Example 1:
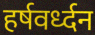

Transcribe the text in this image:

हर्षवर्ध्दन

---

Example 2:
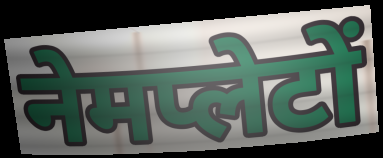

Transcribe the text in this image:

नेमप्लेटों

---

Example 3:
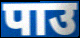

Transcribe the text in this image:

पाउ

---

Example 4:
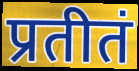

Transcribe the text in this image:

प्रतीतं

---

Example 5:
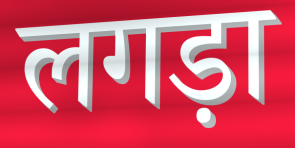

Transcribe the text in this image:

लगड़ा